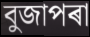
বুজাপৰা